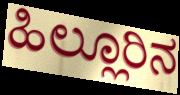
ಹಿಲ್ಲೂರಿನ